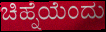
ಚಿಹ್ನೆಯೆಂದು